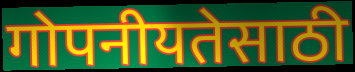
गोपनीयतेसाठी